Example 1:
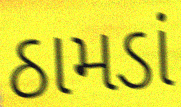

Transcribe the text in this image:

ઠામડાં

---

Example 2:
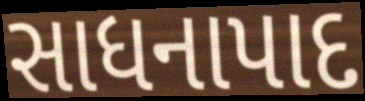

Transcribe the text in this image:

સાધનાપાદ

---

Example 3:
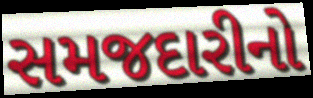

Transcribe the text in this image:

સમજદારીનો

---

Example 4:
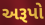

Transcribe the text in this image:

અરૂપો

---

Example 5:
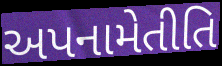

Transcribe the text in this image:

અપનામેતીતિ